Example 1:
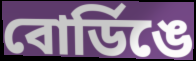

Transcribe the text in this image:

বোর্ডিঙে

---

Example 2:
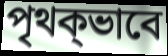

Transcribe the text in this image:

পৃথক্ভাবে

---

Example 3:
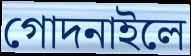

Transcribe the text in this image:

গোদনাইলে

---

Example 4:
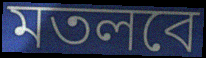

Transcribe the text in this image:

মতলবে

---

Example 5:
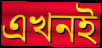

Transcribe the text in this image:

এখনই